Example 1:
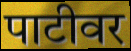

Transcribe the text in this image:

पाटीवर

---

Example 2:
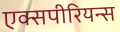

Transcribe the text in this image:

एक्सपीरियन्स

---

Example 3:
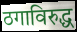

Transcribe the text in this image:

ठगाविरुद्ध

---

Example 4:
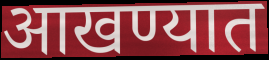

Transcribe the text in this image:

आखण्यात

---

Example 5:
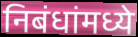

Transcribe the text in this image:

निबंधांमध्ये